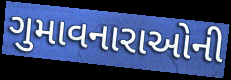
ગુમાવનારાઓની